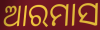
ଆରମାସ